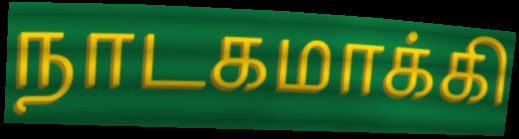
நாடகமாக்கி